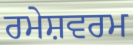
ਰਮੇਸ਼ਵਰਮ